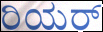
ರಿಯರ್